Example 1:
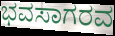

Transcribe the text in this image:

ಭವಸಾಗರವ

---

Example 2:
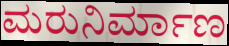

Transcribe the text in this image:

ಮರುನಿರ್ಮಾಣ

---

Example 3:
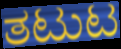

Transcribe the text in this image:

ತಟುಟ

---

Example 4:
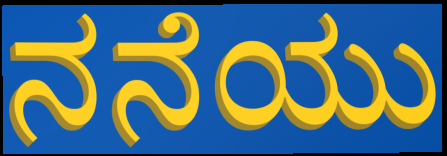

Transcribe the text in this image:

ನನೆಯು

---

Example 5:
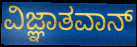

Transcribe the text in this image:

ವಿಜ್ಞಾತವಾನ್